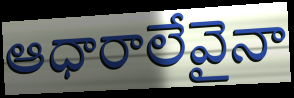
ఆధారాలేవైనా